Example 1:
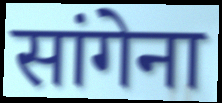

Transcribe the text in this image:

सांगेना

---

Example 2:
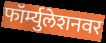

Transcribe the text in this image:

फॉर्म्युलेशनवर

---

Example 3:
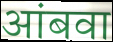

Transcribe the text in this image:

आंबवा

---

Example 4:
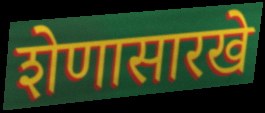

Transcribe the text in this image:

शेणासारखे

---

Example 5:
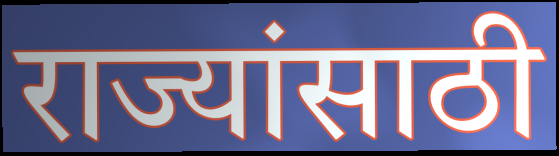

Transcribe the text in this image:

राज्यांसाठी